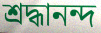
শ্ৰদ্ধানন্দ